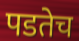
पडतेच